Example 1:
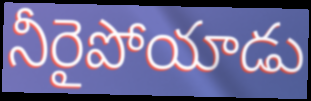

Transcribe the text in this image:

నీరైపోయాడు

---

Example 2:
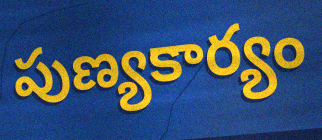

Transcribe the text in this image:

పుణ్యకార్యం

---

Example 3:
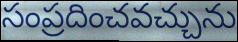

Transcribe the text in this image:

సంప్రదించవచ్చును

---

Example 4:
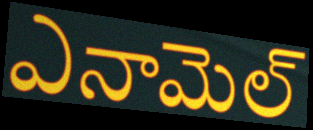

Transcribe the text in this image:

ఎనామెల్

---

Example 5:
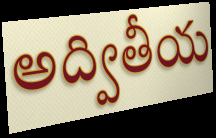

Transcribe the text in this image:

అద్వితీయ